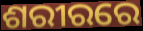
ଶରୀରରେ